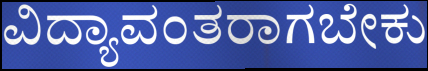
ವಿದ್ಯಾವಂತರಾಗಬೇಕು